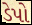
ડેપો